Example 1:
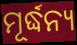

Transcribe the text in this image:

ମୂର୍ଦ୍ଧନ୍ୟ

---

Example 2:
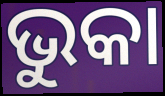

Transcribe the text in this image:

ଭୁକା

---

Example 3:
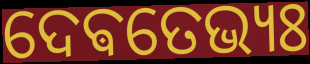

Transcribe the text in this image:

ଦେଵତେଭ୍ୟଃ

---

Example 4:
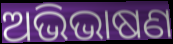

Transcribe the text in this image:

ଅଭିଭାଷଣ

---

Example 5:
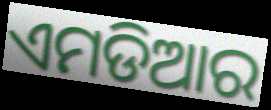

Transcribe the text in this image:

ଏମଡିଆର